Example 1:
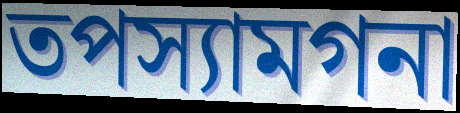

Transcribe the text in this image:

তপস্যামগনা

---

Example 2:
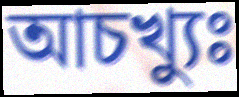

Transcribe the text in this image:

আচখ্যুঃ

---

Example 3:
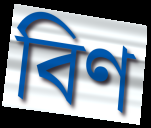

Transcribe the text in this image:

বিণ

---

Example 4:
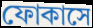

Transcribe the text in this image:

ফোকাসে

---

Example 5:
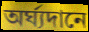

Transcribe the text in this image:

অর্ঘ্যদানে